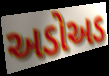
અડોઅડ